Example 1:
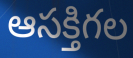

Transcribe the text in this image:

ఆసక్తిగల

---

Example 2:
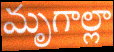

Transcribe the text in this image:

మృగాల్లా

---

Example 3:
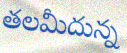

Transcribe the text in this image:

తలమీదున్న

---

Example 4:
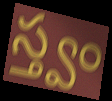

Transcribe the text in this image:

స్త్వం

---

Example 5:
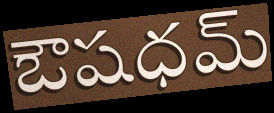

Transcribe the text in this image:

ఔషధమ్